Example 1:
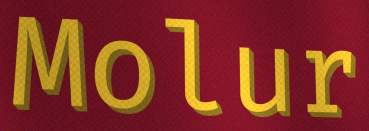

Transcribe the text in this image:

Molur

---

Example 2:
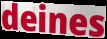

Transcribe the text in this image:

deines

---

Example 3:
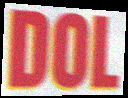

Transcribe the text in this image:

DOL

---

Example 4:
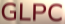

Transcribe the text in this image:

GLPC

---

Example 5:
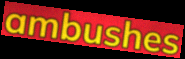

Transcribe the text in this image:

ambushes